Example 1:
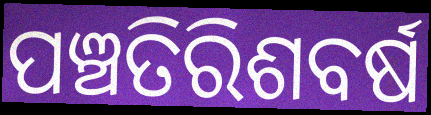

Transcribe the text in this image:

ପଞ୍ଚତିରିଶବର୍ଷ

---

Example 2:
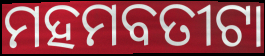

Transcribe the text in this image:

ମହମବତୀଟା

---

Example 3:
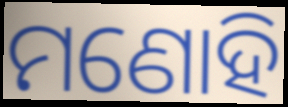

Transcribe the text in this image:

ମଣୋହି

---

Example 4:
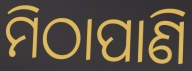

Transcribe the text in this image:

ମିଠାପାଣି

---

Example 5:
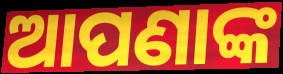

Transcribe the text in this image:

ଆପଣାଙ୍କ